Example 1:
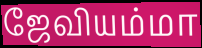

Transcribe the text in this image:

ஜேவியம்மா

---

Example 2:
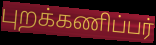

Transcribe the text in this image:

புறக்கணிப்பர்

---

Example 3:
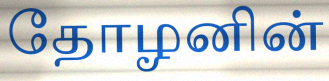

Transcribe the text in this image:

தோழனின்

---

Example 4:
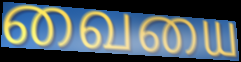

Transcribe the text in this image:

வையை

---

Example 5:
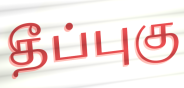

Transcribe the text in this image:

தீப்புகு